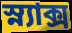
স্ন্যাক্স